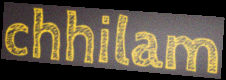
chhilam